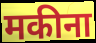
मकीना